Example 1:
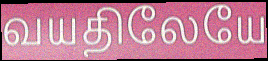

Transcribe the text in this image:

வயதிலேயே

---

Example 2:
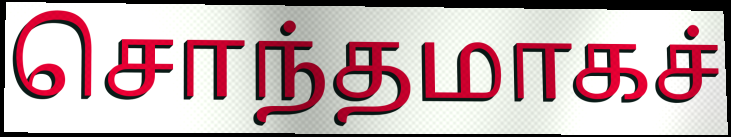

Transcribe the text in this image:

சொந்தமாகச்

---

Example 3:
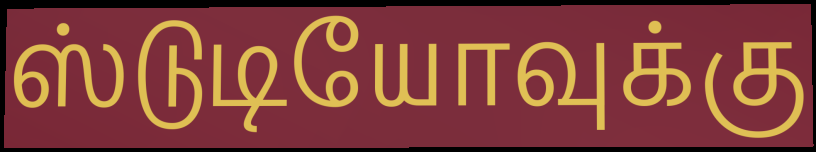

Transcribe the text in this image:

ஸ்டுடியோவுக்கு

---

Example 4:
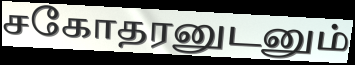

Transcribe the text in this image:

சகோதரனுடனும்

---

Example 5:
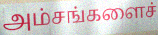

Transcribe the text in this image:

அம்சங்களைச்